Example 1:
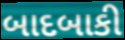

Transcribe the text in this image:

બાદબાકી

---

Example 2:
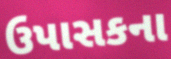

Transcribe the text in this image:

ઉપાસકના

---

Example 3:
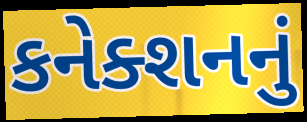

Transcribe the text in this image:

કનેક્શનનું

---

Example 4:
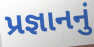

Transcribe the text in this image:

પ્રજ્ઞાનનું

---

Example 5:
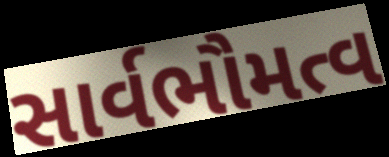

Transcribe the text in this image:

સાર્વભૌમત્વ